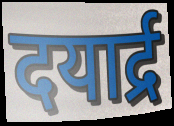
दयार्द्र